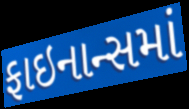
ફાઇનાન્સમાં